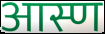
आस्ण